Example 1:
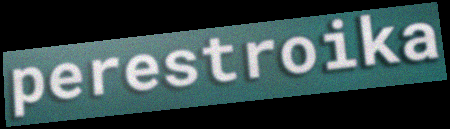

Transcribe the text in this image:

perestroika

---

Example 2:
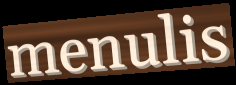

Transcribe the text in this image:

menulis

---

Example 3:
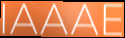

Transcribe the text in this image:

IAAAE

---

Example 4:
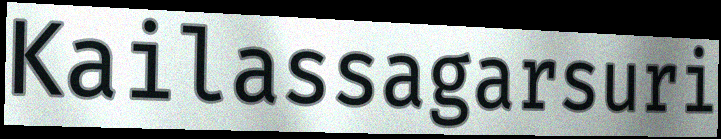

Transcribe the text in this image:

Kailassagarsuri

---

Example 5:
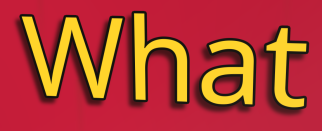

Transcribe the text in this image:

What